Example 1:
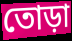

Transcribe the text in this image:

তোড়া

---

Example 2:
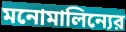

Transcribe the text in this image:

মনোমালিন্যের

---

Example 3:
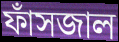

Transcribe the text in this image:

ফাঁসজাল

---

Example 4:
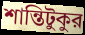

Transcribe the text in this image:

শান্তিটুকুর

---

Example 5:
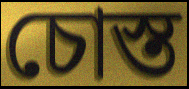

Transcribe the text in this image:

চোস্ত